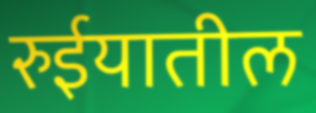
रुईयातील